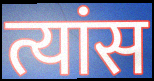
त्यांस